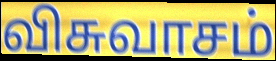
விசுவாசம்